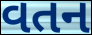
વતન